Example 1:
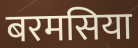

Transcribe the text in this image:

बरमसिया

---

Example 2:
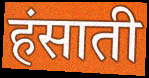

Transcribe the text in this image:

हंसाती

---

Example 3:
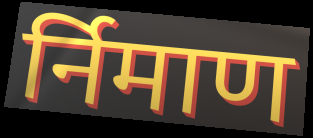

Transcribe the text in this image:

र्निमाण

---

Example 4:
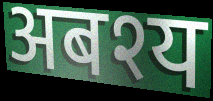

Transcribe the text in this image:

अबश्य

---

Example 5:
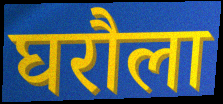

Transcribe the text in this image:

घरौला